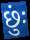
છુંઃ